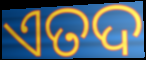
ଏତଦ